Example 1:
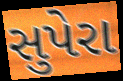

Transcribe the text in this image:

સુપેરા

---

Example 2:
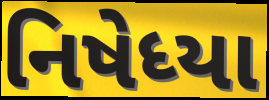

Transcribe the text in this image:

નિષેધ્યા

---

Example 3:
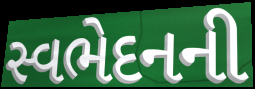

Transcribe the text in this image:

સ્વભેદનની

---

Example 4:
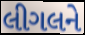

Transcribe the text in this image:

લીગલને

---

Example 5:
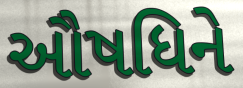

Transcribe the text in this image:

ઔષધિને